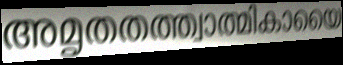
അമൃതതത്ത്വാത്മികായൈ